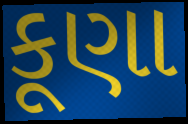
કૂણા